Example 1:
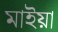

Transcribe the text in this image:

মাইয়া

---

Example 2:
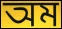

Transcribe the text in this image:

অম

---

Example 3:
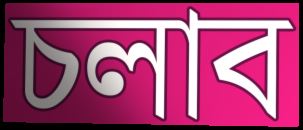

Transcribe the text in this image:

চলাব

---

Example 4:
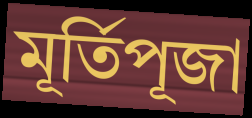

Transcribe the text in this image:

মূৰ্তিপূজা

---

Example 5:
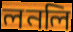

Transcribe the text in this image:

লনলি